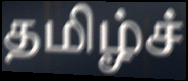
தமிழ்ச்